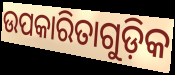
ଉପକାରିତାଗୁଡ଼ିକ